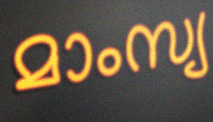
മാംസ്യ